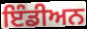
ਇੰਡੀਅਨ